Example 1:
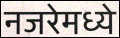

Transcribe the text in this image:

नजरेमध्ये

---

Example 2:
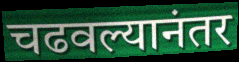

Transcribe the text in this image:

चढवल्यानंतर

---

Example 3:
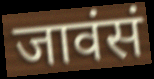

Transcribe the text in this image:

जावंसं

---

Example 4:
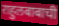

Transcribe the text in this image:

राहुलबाबाची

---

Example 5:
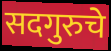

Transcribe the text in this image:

सदगुरुचे